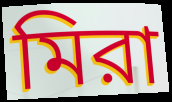
মিরা